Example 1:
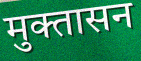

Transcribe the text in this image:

मुक्तासन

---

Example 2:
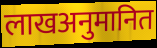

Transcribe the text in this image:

लाखअनुमानित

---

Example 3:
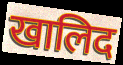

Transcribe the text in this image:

खालिद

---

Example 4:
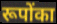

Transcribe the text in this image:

रूपोंका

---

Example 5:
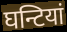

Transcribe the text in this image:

घन्टियां